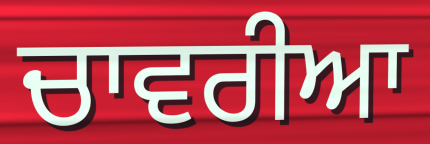
ਚਾਵਰੀਆ